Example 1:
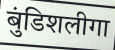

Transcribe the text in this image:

बुंडिशलीगा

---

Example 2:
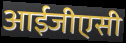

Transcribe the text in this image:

आईजीएसी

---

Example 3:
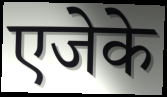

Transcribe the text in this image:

एजेके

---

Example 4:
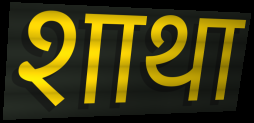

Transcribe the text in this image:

शाथा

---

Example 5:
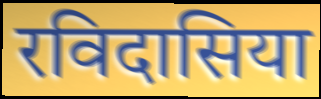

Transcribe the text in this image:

रविदासिया